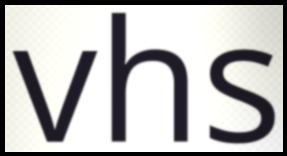
vhs